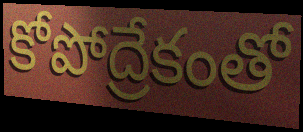
కోపోద్రేకంతో